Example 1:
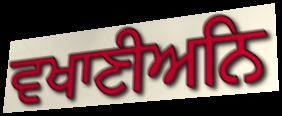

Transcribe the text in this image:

ਵਖਾਣੀਅਨਿ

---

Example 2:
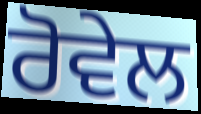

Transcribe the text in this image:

ਰੋਵੇਲ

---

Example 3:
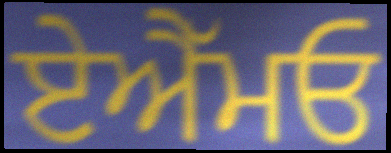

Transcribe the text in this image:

ਏਐੱਮਓ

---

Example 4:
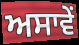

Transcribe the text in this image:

ਅਸਾਵੇਂ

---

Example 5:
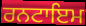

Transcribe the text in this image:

ਰਨਟਾਇਮ